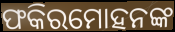
ଫକିରମୋହନଙ୍କ